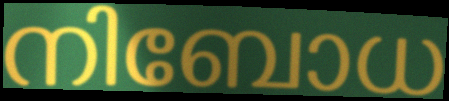
നിബോധ